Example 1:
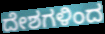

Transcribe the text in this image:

ದೇಶಗಳಿಂದ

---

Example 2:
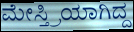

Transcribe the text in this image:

ಮೇಸ್ತ್ರಿಯಾಗಿದ್ದ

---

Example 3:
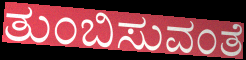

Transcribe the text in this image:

ತುಂಬಿಸುವಂತೆ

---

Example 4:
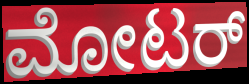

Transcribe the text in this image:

ಮೋಟರ್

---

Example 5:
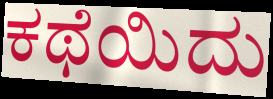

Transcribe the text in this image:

ಕಥೆಯಿದು